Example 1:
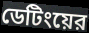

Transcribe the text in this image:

ডেটিংয়ের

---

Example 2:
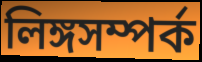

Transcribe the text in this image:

লিঙ্গসম্পর্ক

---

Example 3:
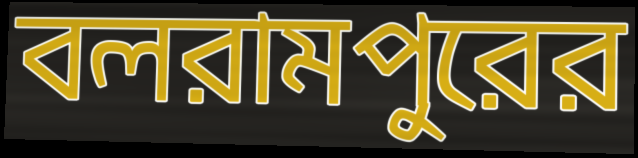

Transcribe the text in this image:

বলরামপুরের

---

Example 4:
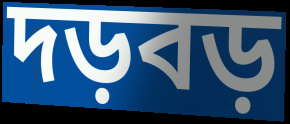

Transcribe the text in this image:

দড়বড়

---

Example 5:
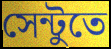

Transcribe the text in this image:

সেন্টুতে